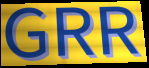
GRR